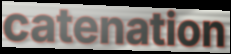
catenation